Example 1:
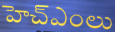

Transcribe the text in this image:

హెచ్ఎంలు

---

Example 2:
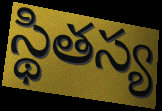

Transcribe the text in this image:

స్థితస్య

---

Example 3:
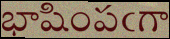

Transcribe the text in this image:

భాషింపఁగా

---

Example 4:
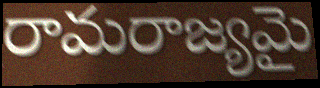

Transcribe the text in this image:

రామరాజ్యమై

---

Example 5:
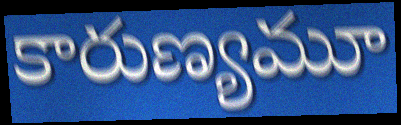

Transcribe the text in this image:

కారుణ్యమూ